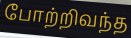
போற்றிவந்த